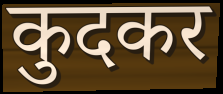
कुदकर